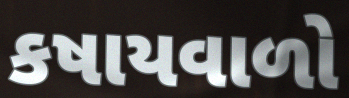
કષાયવાળો